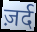
ज़र्द